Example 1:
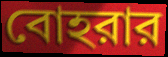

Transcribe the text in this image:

বোহরার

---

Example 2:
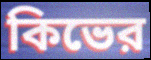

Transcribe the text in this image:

কিভের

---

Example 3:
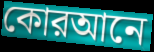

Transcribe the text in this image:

কোরআনে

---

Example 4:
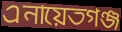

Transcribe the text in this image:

এনায়েতগঞ্জ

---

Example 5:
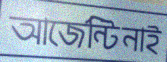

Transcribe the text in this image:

আর্জেন্টিনাই